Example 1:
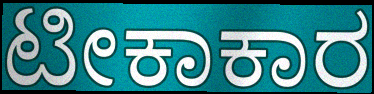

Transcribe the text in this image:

ಟೀಕಾಕಾರ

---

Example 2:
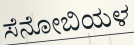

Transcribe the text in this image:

ಸೆನೋಬಿಯಳ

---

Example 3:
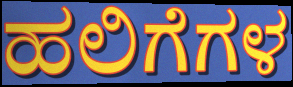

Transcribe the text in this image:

ಹಲಿಗೆಗಳ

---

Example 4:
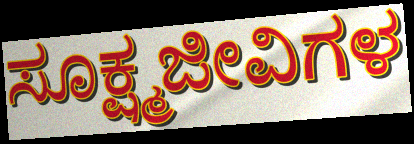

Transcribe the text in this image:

ಸೂಕ್ಷ್ಮಜೀವಿಗಳ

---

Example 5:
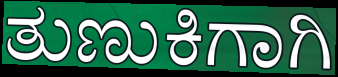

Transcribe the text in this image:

ತುಣುಕಿಗಾಗಿ